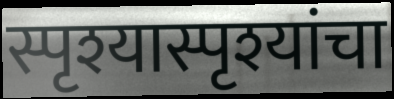
स्पृश्यास्पृश्यांचा